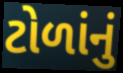
ટોળાંનું